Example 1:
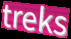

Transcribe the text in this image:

treks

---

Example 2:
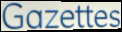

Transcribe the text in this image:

Gazettes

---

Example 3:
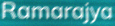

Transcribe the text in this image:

Ramarajya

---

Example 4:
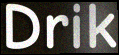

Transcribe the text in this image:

Drik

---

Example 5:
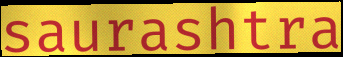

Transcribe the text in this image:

saurashtra